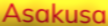
Asakusa